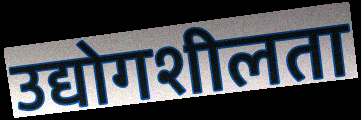
उद्योगशीलता